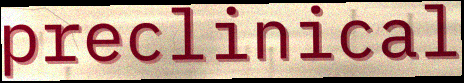
preclinical